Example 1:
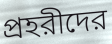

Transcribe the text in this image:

প্রহরীদের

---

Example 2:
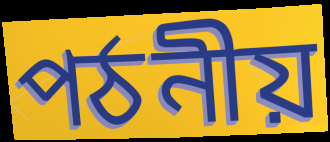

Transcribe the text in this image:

পঠনীয়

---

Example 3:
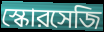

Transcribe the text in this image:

স্কোরসেজি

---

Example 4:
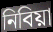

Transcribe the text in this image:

নিবিয়া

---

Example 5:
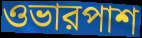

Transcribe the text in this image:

ওভারপাশ